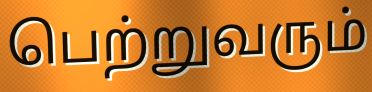
பெற்றுவரும்